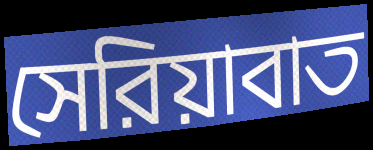
সেরিয়াবাত